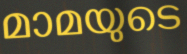
മാമയുടെ